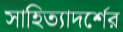
সাহিত্যাদর্শের